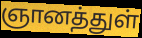
ஞானத்துள்